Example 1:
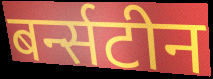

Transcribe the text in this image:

बर्न्सटीन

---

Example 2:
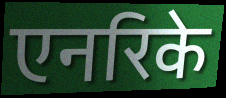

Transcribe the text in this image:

एनरिके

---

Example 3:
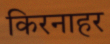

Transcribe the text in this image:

किरनाहर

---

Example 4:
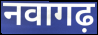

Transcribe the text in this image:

नवागढ़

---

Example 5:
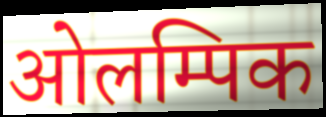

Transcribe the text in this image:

ओलम्पिक